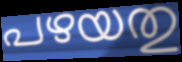
പഴയതു